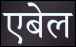
एबेल